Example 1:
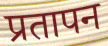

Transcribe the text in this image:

प्रतापन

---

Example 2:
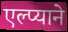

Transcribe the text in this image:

एल्प्याने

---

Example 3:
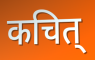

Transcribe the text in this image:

कचित्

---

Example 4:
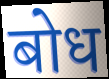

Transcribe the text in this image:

बोध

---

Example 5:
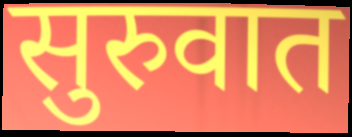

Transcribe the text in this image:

सुरुवात